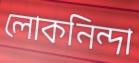
লোকনিন্দা